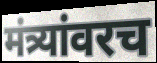
मंत्र्यांवरच